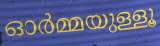
ഓർമ്മയുള്ളൂ